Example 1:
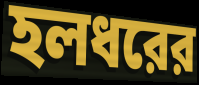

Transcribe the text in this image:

হলধরের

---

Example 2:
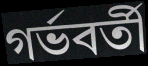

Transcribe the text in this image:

গর্ভবর্তী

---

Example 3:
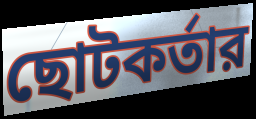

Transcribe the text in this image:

ছোটকর্তার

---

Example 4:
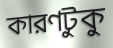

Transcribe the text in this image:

কারণটুকু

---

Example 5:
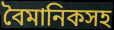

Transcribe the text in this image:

বৈমানিকসহ